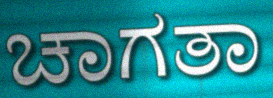
ಚಾಗತಾ